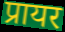
प्रायर